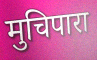
मुचिपारा